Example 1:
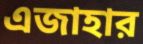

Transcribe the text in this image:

এজাহার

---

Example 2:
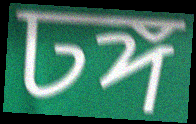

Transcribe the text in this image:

ঢঙ্গ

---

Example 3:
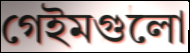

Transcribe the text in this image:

গেইমগুলো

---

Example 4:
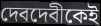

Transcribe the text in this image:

দেবদেবীকেই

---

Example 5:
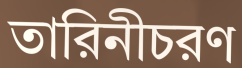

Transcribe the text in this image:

তারিনীচরণ